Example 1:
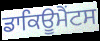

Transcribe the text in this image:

ਡਾਕਿਊਮੈਂਟਸ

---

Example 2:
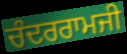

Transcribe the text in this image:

ਚੰਦਰਰਾਮਜੀ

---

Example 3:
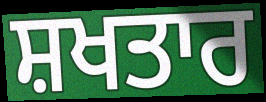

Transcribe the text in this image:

ਸ਼ਖਤਾਰ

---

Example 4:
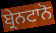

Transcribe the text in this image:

ਬ੍ਰੇਨਟਾਨੋ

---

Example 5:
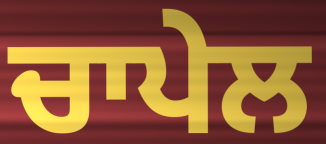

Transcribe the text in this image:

ਚਾਪੇਲ